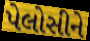
પેલોસીને